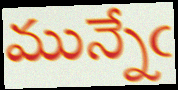
మున్నేఁ